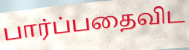
பார்ப்பதைவிட